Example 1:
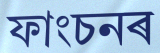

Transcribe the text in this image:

ফাংচনৰ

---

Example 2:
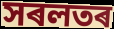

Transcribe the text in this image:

সৰলতৰ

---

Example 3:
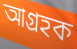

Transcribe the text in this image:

আগ্ৰহক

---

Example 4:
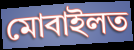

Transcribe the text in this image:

মোবাইলত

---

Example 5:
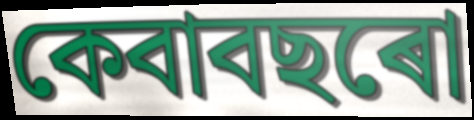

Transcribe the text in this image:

কেবাবছৰো